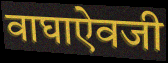
वाघाऐवजी